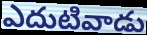
ఎదుటివాడు